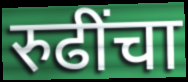
रुढींचा